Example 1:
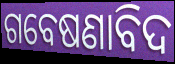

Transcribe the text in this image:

ଗବେଷଣାବିଦ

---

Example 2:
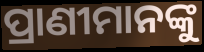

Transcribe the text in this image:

ପ୍ରାଣୀମାନଙ୍କୁ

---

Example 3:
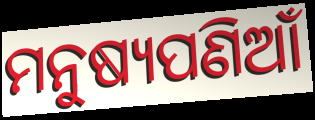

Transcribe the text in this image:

ମନୁଷ୍ୟପଣିଆଁ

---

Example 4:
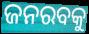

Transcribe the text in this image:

ଜନରବକୁ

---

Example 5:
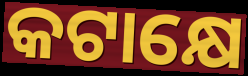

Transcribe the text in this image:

କଟାକ୍ଷେ